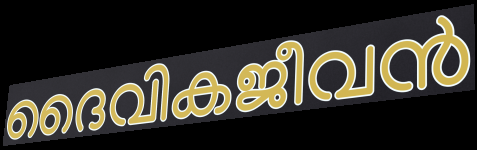
ദൈവികജീവൻ